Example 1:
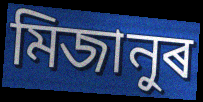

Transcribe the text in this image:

মিজানুৰ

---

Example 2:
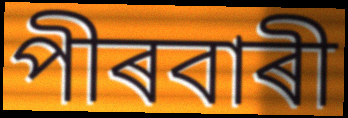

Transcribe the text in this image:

পীৰবাৰী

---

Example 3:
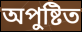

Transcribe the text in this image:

অপুষ্টিত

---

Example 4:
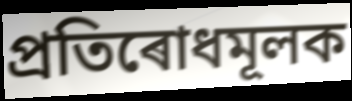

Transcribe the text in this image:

প্ৰতিৰোধমূলক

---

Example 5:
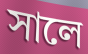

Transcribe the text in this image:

সালে